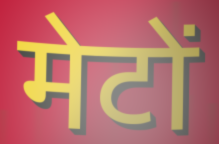
मेटों